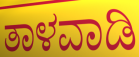
ತಾಳವಾಡಿ